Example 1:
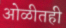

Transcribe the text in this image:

ओळीतही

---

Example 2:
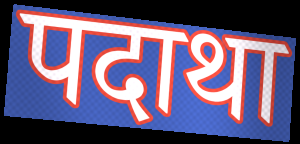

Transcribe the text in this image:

पदाथा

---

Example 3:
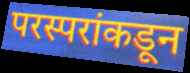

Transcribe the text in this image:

परस्परांकडून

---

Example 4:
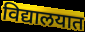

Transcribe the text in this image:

विद्यालयात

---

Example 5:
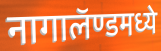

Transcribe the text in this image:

नागालॅण्डमध्ये